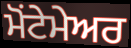
ਮੋਂਟੇਮੇਅਰ